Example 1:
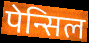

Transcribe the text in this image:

पेन्सिल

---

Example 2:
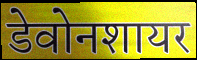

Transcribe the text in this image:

डेवोनशायर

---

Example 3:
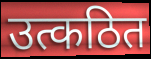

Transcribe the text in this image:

उत्कठित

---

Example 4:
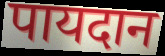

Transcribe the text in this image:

पायदान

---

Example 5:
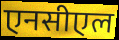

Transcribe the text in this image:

एनसीएल